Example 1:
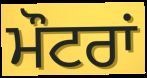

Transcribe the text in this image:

ਮੌਟਰਾਂ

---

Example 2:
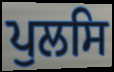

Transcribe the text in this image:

ਪੁਲਸਿ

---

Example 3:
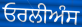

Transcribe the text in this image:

ਓਰਲੀਅੰਸ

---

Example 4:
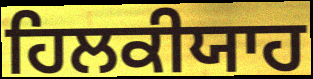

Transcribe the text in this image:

ਹਿਲਕੀਯਾਹ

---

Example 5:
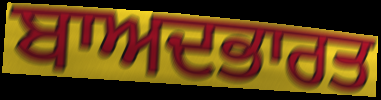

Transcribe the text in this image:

ਬਾਅਦਭਾਰਤ